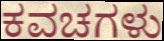
ಕವಚಗಳು